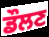
ਡੌਲਣ